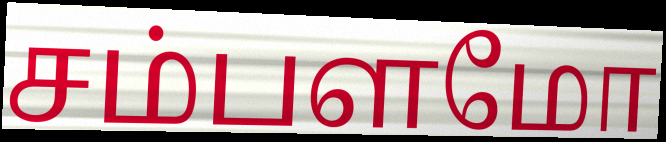
சம்பளமோ